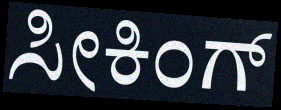
ಸೀಕಿಂಗ್